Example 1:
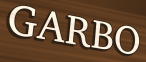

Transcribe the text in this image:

GARBO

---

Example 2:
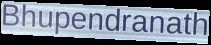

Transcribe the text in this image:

Bhupendranath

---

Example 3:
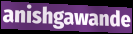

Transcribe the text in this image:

anishgawande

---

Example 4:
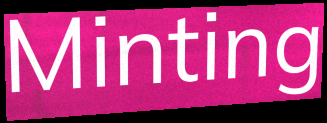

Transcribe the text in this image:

Minting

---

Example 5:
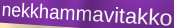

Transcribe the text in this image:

nekkhammavitakko